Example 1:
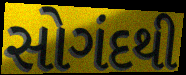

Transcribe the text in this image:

સોગંદથી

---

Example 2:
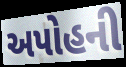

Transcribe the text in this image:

અપોહની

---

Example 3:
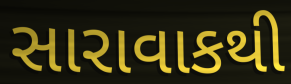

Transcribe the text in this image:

સારાવાકથી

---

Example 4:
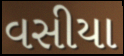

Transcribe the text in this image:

વસીયા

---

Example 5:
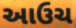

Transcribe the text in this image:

આઉચ